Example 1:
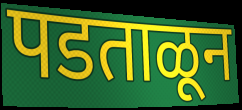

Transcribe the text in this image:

पडताळून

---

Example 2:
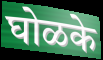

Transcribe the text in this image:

घोळके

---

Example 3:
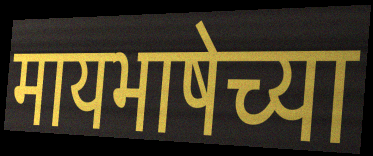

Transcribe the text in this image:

मायभाषेच्या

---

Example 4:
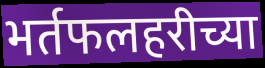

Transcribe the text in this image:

भर्तफलहरीच्या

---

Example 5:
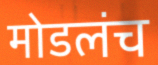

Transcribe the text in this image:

मोडलंच